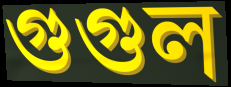
গুগুল